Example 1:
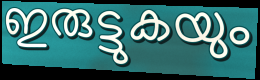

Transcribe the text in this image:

ഇരുട്ടുകയും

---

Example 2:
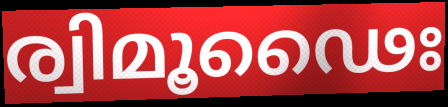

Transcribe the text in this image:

ര്വിമൂഢൈഃ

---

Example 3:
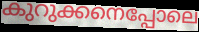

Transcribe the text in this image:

കുറുക്കനെപ്പോലെ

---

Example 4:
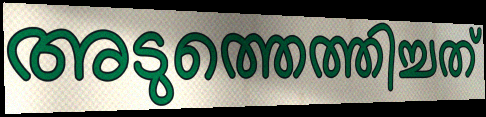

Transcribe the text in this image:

അടുത്തെത്തിച്ചത്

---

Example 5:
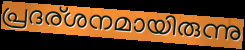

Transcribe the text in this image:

പ്രദര്ശനമായിരുന്നു